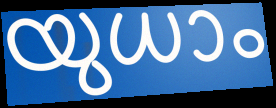
യുധാം